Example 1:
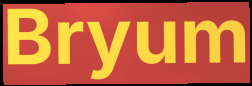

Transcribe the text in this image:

Bryum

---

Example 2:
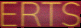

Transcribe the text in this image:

ERTS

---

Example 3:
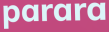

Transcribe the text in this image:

parara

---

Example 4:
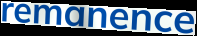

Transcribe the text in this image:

remanence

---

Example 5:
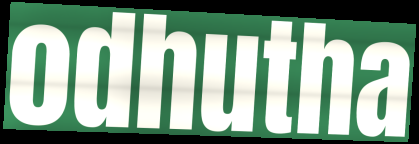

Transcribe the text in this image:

odhutha